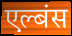
एल्बंस